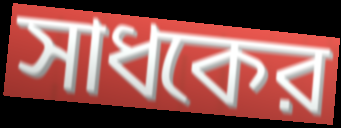
সাধকের